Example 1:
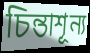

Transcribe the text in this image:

চিন্তাশূন্য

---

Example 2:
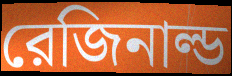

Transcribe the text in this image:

রেজিনাল্ড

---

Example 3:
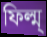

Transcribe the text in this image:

ফিল্ম্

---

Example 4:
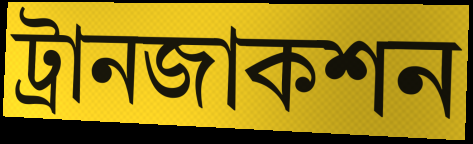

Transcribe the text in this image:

ট্রানজাকশন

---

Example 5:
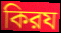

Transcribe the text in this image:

কিরয